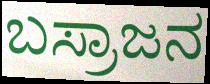
ಬಸ್ರಾಜನ